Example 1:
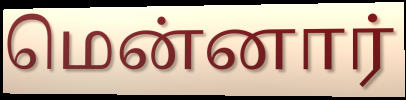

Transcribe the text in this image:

மென்னார்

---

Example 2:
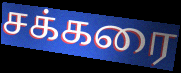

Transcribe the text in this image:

சக்கரை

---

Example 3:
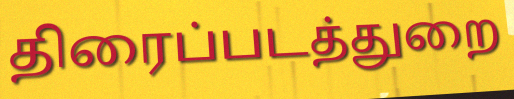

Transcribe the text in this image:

திரைப்படத்துறை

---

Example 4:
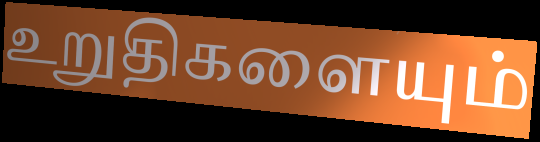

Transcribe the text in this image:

உறுதிகளையும்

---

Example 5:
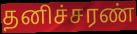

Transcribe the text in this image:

தனிச்சரண்